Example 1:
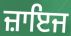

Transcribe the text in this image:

ਜ਼ਾਇਜ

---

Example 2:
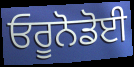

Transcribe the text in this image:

ਓਰੂਨੋਡੋਈ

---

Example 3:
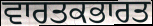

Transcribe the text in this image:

ਵਾਰਤਕਭਾਰਤ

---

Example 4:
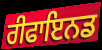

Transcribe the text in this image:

ਰੀਫਾਇਨਡ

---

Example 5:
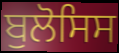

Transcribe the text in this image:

ਬੁਲੋਸਿਸ